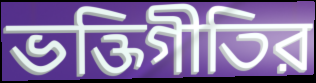
ভক্তিগীতির